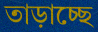
তাড়াচ্ছে